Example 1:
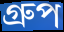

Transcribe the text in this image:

গ্ৰুপ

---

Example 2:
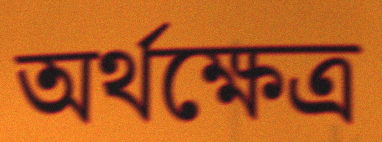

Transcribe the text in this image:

অৰ্থক্ষেত্ৰ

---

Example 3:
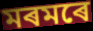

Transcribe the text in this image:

মৰমৰে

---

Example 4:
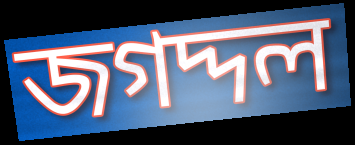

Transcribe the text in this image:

জগদ্দল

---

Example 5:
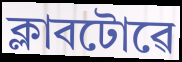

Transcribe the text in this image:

ক্লাবটোৱে